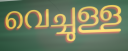
വെച്ചുള്ള